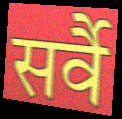
सर्वै